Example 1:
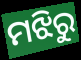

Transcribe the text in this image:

ମଝିରୁ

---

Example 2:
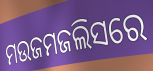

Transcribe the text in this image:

ମଉଜମଜଲିସରେ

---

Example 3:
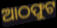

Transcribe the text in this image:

ଆଠଫୁଟ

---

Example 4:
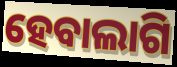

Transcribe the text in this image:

ହେବାଲାଗି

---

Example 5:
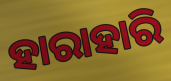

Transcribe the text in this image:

ହାରାହାରି